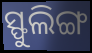
ସ୍ଫୁଲିଙ୍ଗ